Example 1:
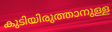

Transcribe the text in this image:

കുടിയിരുത്താനുള്ള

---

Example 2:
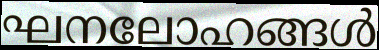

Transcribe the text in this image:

ഘനലോഹങ്ങൾ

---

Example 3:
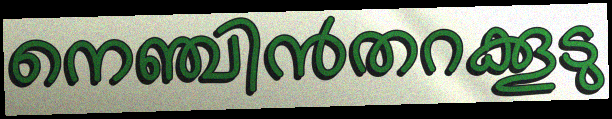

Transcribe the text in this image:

നെഞ്ചിൻതറക്കൂടു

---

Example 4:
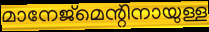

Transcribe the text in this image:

മാനേജ്മെന്റിനായുള്ള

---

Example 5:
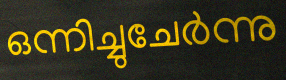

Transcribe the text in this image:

ഒന്നിച്ചുചേർന്നു